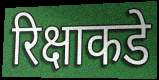
रिक्षाकडे